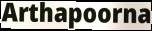
Arthapoorna